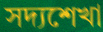
সদ্যশেখা